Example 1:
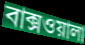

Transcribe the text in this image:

বাক্সওয়ালা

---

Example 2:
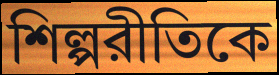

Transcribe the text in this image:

শিল্পরীতিকে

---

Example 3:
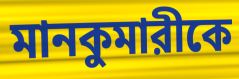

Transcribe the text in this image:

মানকুমারীকে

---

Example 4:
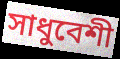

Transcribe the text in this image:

সাধুবেশী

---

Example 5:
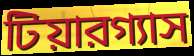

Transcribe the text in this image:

টিয়ারগ্যাস